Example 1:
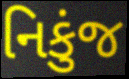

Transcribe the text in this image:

નિકુંજ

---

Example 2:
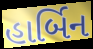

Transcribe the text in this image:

હાર્બિન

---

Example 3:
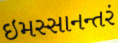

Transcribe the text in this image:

ઇમસ્સાનન્તરં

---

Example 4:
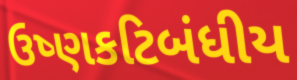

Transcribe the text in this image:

ઉષ્ણકટિબંધીય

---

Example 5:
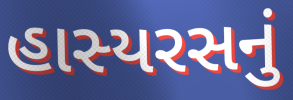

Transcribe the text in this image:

હાસ્યરસનું